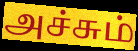
அச்சும்